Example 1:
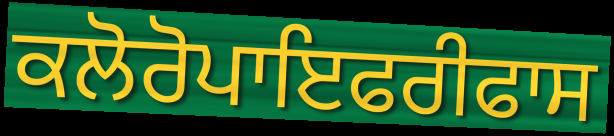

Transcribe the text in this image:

ਕਲੋਰੋਪਾਇਫਰੀਫਾਸ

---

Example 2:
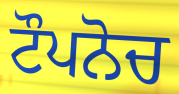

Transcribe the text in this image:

ਟੌਪਨੋਚ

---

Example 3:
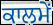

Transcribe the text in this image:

ਕਾਲਮੇਂ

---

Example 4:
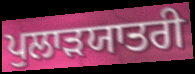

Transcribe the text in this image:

ਪੁਲਾੜਯਾਤਰੀ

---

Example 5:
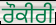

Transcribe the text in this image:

ਰੌਕੀਰੀ